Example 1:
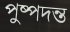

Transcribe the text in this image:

পুষ্পদন্ত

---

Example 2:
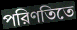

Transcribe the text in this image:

পরিণতিতে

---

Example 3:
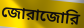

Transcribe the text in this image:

জোরাজোরি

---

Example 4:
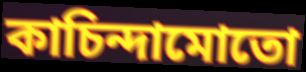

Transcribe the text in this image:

কাচিন্দামোতো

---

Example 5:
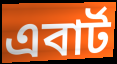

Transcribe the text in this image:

এবার্ট